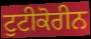
ਟੁਟੀਕੋਰੀਨ